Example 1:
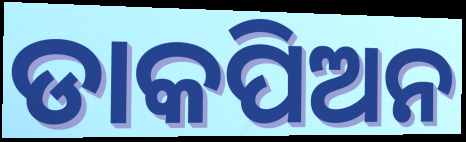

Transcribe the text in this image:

ଡାକପିଅନ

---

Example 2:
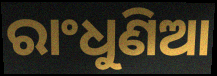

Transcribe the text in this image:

ରାଂଧୁଣିଆ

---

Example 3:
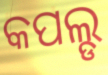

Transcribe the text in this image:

କପଲ୍ଡ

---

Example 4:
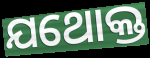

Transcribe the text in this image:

ଯଥୋକ୍ତ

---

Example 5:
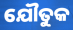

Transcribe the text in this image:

ଯୌତୁକ